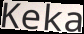
Keka